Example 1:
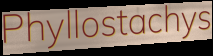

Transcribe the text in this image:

Phyllostachys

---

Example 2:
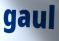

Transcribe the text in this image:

gaul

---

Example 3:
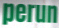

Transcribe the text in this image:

perun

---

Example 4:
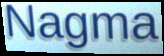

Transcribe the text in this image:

Nagma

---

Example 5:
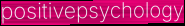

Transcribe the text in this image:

positivepsychology